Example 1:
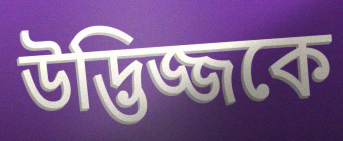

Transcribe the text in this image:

উদ্ভিজ্জকে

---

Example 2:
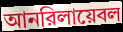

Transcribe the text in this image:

আনরিলায়েবল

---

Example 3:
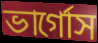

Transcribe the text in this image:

ভার্গোস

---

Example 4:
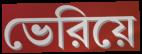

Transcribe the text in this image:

ভেরিয়ে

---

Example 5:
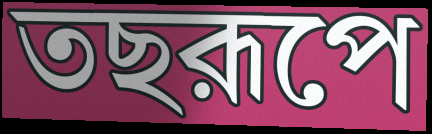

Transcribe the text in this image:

তছরূপে